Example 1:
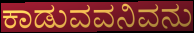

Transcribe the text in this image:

ಕಾಡುವವನಿವನು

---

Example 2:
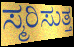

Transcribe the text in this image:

ಸ್ಮರಿಸುತ್ತ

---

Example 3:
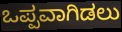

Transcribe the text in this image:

ಒಪ್ಪವಾಗಿಡಲು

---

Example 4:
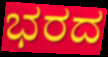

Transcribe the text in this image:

ಭರದ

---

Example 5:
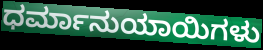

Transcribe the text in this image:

ಧರ್ಮಾನುಯಾಯಿಗಳು